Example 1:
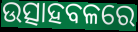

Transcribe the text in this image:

ଉତ୍ସାହବଳରେ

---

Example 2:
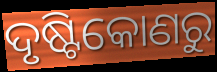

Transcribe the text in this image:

ଦୃଷ୍ଟିକୋଣରୁ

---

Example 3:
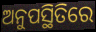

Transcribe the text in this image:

ଅନୁପସ୍ଥିତିରେ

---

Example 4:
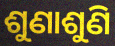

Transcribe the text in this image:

ଶୁଣାଶୁଣି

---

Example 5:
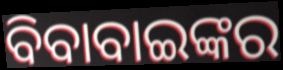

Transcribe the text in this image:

ବିବାବାଇଙ୍କର